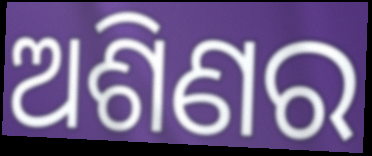
ଅଶିଣର